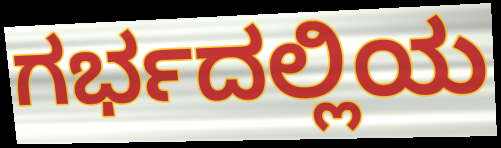
ಗರ್ಭದಲ್ಲಿಯ